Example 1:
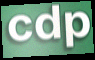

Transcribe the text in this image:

cdp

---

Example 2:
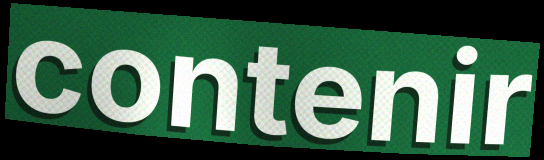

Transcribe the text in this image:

contenir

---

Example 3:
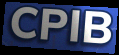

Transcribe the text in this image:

CPIB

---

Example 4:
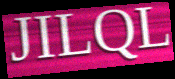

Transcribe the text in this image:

JILQL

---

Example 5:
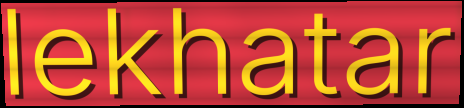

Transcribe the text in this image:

lekhatar